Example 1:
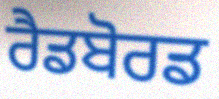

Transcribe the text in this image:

ਰੈਡਬੋਰਡ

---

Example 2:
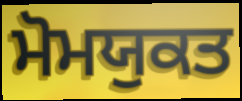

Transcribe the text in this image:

ਮੋਮਯੁਕਤ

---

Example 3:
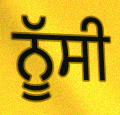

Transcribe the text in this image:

ਨੂੱਸੀ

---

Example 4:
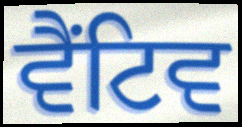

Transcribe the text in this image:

ਵੈਂਟਿਵ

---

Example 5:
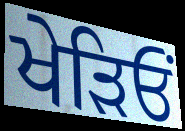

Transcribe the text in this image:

ਖੇੜਿਓਂ